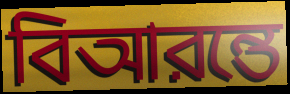
বিআরন্তে